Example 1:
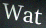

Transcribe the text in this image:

Wat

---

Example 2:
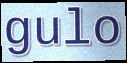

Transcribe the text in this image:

gulo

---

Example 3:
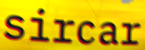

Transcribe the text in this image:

sircar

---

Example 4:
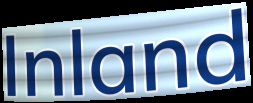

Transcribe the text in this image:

Inland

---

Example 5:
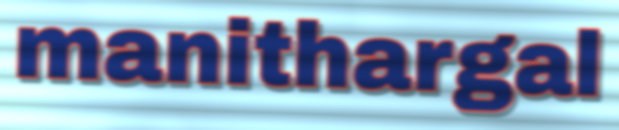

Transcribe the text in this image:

manithargal